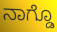
ನಾಗ್ಡೊ